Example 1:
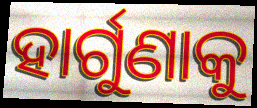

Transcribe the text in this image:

ହାର୍ଗୁଣାକୁ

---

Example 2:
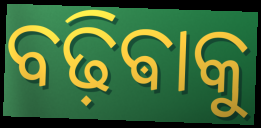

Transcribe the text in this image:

ବଢ଼ିଵାକୁ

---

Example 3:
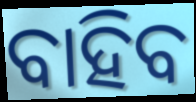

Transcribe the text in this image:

ବାହିବ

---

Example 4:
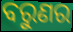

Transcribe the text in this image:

ବରୁଣର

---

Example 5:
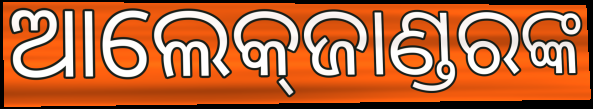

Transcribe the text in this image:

ଆଲେକ୍‍ଜାଣ୍ଡରଙ୍କ